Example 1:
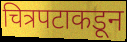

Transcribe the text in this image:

चित्रपटाकडून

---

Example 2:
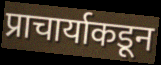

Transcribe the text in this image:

प्राचार्याकडून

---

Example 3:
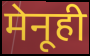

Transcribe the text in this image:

मेनूही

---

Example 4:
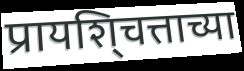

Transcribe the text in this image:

प्रायश्‍चित्ताच्या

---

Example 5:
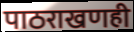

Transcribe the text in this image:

पाठराखणही